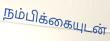
நம்பிக்கையுடன்